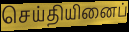
செய்தியினைப்